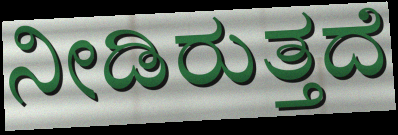
ನೀಡಿರುತ್ತದೆ